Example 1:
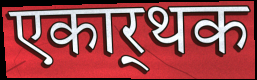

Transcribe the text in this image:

एकार्थक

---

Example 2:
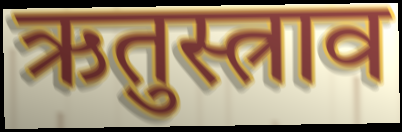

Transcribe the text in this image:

ऋतुस्त्राव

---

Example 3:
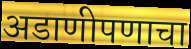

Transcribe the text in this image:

अडाणीपणाचा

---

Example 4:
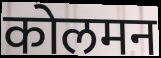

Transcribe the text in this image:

कोलमन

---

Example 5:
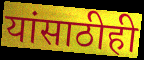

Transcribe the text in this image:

यांसाठीही